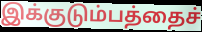
இக்குடும்பத்தைச்